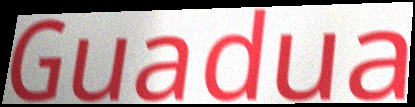
Guadua